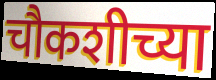
चौकशीच्या